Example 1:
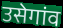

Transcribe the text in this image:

उसेगांव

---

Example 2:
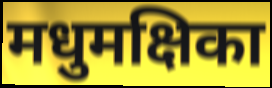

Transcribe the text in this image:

मधुमक्षिका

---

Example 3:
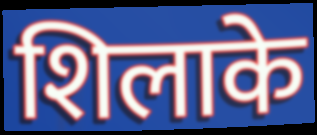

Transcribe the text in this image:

शिलाके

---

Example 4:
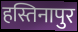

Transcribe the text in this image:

हस्तिनापुर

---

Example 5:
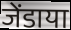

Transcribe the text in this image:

जेंडाया